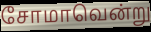
சோமாவென்று